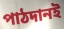
পাঠদানই